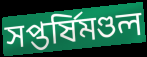
সপ্তর্ষিমণ্ডল